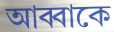
আব্বাকে